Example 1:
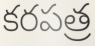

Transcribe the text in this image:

కరపత్ర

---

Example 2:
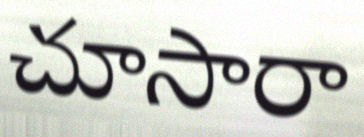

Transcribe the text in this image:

చూసారా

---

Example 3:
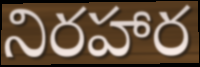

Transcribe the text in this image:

నిరహార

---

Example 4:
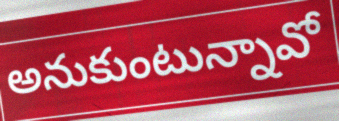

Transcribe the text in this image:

అనుకుంటున్నావో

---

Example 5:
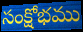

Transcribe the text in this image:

సంక్షోభము